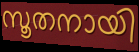
സൂതനായി